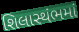
શિલાસ્થંભમાં